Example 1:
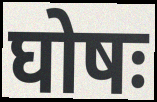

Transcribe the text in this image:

घोषः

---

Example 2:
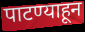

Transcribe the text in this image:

पाटण्याहून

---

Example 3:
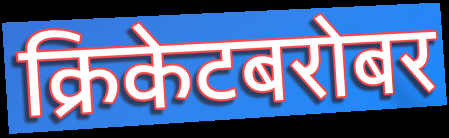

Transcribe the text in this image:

क्रिकेटबरोबर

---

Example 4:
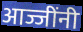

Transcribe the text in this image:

आज्जींनी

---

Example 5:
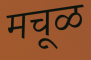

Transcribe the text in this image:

मचूळ